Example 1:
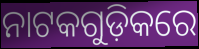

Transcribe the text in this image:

ନାଟକଗୁଡ଼ିକରେ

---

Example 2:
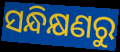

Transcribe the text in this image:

ସନ୍ଧିକ୍ଷଣରୁ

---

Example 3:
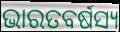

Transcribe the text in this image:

ଭାରତବର୍ଷସ୍ୟ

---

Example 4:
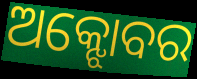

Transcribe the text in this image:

ଅକ୍ଝୋବର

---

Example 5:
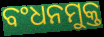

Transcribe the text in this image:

ବଂଧନମୁକ୍ତ